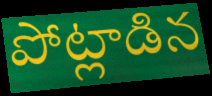
పోట్లాడిన